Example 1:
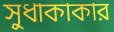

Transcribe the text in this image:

সুধাকাকার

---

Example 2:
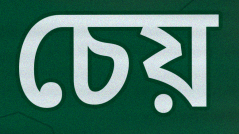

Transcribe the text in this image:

চেয়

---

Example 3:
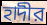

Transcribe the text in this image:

হাদীর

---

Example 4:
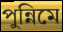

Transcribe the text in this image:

পুন্নিমে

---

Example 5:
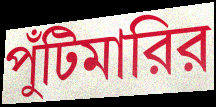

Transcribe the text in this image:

পুঁটিমারির